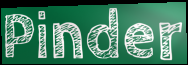
Pinder